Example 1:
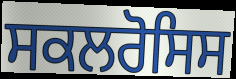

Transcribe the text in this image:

ਸਕਲਰੋਸਿਸ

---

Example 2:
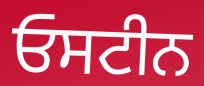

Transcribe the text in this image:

ਓਸਟੀਨ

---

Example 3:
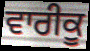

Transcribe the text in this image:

ਵਾਰੀਕੂ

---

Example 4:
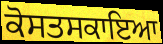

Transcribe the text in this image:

ਕੋਸਤਸਕਾਇਆ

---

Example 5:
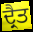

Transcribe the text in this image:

ਦ੍ਰੈਤ